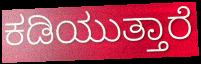
ಕಡಿಯುತ್ತಾರೆ